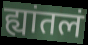
ह्यांतलं